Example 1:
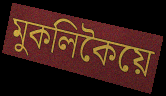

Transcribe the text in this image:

মুকলিকৈয়ে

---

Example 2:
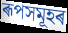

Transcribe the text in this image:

ৰূপসমূহৰ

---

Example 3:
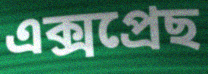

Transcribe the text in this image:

এক্সপ্ৰেছ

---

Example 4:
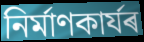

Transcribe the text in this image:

নিৰ্মাণকাৰ্যৰ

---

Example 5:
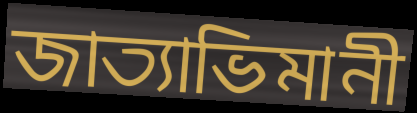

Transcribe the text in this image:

জাত্যাভিমানী